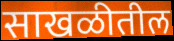
साखळीतील